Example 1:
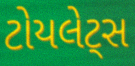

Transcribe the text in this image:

ટોયલેટ્સ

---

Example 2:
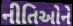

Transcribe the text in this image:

નીતિઓને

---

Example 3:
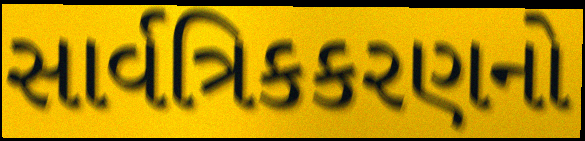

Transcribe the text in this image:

સાર્વત્રિકકરણનો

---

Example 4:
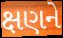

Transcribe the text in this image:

ક્ષણને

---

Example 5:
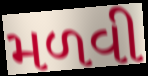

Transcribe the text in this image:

મળવી